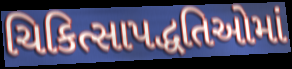
ચિકિત્સાપદ્ધતિઓમાં